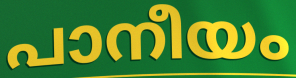
പാനീയം